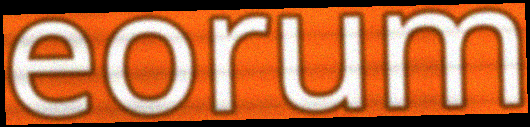
eorum